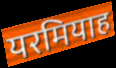
यरमियाह